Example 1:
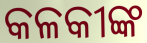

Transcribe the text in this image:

କଳକୀଙ୍କ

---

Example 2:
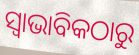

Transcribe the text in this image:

ସ୍ୱାଭାବିକଠାରୁ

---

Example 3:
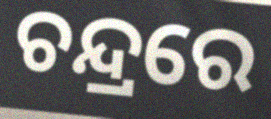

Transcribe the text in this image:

ଚନ୍ଦ୍ରରେ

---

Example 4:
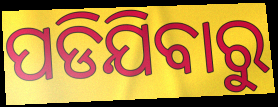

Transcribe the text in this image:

ପଡିଯିବାରୁ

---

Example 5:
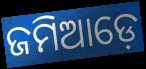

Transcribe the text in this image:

ଜମିଆଡ଼େ